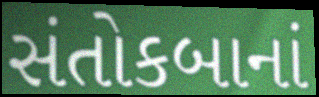
સંતોકબાનાં